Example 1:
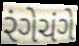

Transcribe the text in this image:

રંગેચંગે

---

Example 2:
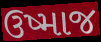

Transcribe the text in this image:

ઉષ્માજ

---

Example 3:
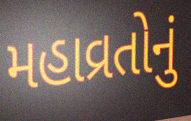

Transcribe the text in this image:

મહાવ્રતોનું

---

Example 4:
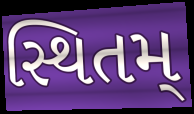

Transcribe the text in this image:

સ્થિતમ્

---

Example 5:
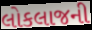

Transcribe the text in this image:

લોકલાજની